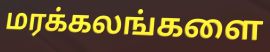
மரக்கலங்களை